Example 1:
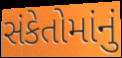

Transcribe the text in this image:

સંકેતોમાંનું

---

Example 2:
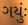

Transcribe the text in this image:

ગયુંઃ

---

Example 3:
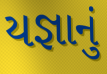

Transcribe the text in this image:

યજ્ઞાનું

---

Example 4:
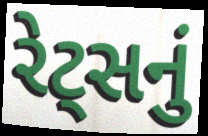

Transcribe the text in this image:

રેટ્સનું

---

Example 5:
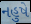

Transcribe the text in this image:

નહુષે